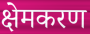
क्षेमकरण